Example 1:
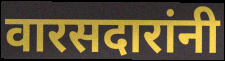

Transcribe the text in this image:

वारसदारांनी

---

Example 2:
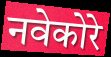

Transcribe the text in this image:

नवेकोरे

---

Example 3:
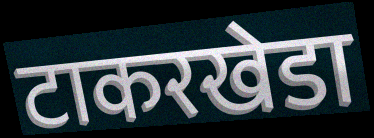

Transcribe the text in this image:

टाकरखेडा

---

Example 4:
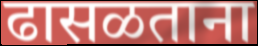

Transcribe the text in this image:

ढासळताना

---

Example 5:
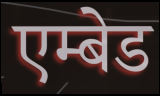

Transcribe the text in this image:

एम्बेड